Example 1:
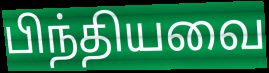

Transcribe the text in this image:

பிந்தியவை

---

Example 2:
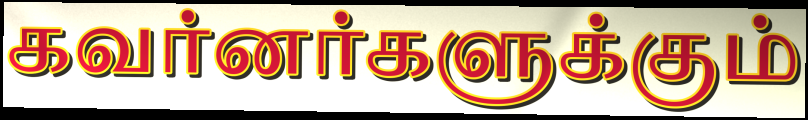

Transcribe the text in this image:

கவர்னர்களுக்கும்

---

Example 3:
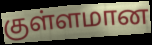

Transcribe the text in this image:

குள்ளமான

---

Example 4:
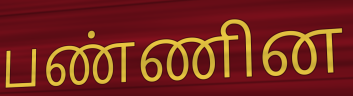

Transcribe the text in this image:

பண்ணின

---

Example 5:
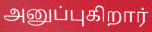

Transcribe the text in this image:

அனுப்புகிறார்